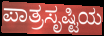
ಪಾತ್ರಸೃಷ್ಟಿಯ